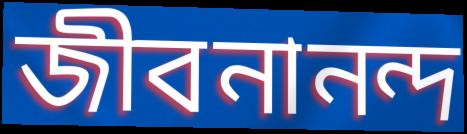
জীবনানন্দ